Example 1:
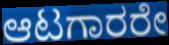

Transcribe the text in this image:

ಆಟಗಾರರೇ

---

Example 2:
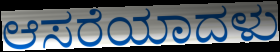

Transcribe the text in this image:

ಆಸರೆಯಾದಳು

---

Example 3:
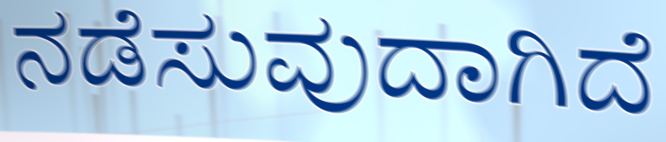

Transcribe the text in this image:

ನಡೆಸುವುದಾಗಿದೆ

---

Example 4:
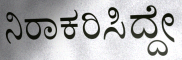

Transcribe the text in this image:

ನಿರಾಕರಿಸಿದ್ದೇ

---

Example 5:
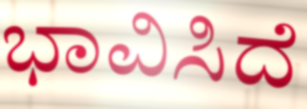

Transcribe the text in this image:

ಭಾವಿಸಿದೆ